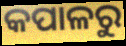
କପାଳରୁ